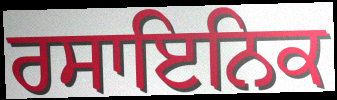
ਰਸਾਇਨਿਕ